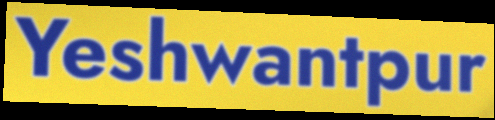
Yeshwantpur